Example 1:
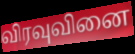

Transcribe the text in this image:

விரவுவினை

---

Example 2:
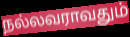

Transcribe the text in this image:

நல்லவராவதும்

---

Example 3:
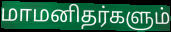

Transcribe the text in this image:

மாமனிதர்களும்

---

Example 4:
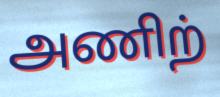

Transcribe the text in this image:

அணிற்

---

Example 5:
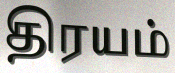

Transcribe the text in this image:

திரயம்